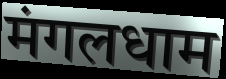
मंगलधाम